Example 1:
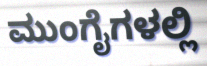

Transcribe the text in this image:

ಮುಂಗೈಗಳಲ್ಲಿ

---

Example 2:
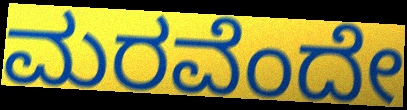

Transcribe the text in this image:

ಮರವೆಂದೇ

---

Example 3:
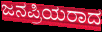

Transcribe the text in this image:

ಜನಪ್ರಿಯರಾದ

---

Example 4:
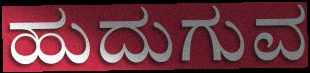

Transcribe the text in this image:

ಹುದುಗುವ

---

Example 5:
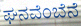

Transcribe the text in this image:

ಘನವೆಂಬೆನೆ